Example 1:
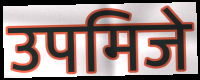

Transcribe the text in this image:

उपमिजे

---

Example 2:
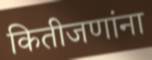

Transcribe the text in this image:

कितीजणांना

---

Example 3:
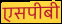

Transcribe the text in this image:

एसपीबी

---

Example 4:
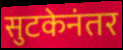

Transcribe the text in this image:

सुटकेनंतर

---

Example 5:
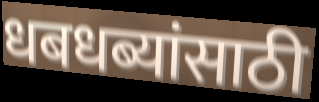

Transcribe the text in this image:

धबधब्यांसाठी